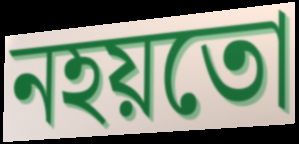
নহয়তো